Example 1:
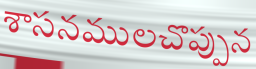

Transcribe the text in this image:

శాసనములచొప్పున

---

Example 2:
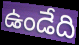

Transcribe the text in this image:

ఉండేది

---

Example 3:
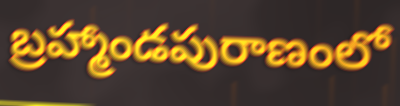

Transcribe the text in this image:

బ్రహ్మాండపురాణంలో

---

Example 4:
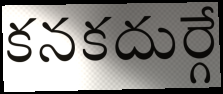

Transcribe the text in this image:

కనకదుర్గే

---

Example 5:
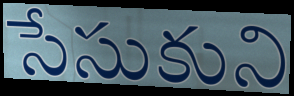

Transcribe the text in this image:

సేసుకుని